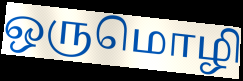
ஒருமொழி